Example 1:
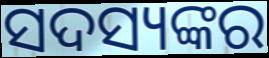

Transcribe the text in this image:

ସଦସ୍ୟଙ୍କର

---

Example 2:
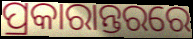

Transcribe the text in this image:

ପ୍ରକାରାନ୍ତରରେ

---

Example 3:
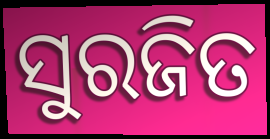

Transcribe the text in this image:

ସୁରଜିତ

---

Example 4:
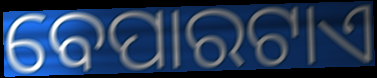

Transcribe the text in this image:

ବେପାରଟାଏ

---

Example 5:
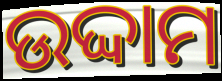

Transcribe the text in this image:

ଉଦ୍ଦାମ